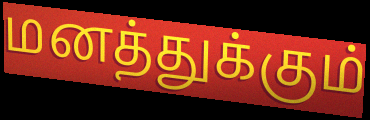
மனத்துக்கும்